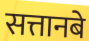
सत्तानबे